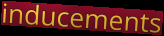
inducements